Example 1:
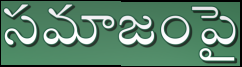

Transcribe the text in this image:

సమాజంపై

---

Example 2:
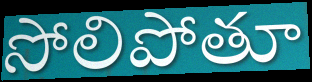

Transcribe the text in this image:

సోలిపోతూ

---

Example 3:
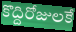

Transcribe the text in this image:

కొద్దిరోజులకే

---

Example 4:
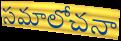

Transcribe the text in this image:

సమాలోచనా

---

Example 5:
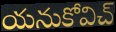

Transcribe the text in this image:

యనుకోవిచ్